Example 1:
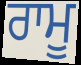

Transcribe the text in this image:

ਰਾਮੂ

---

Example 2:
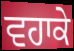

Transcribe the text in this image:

ਵਹਾਕੇ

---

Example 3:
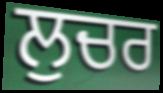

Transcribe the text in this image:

ਲੁਚਰ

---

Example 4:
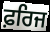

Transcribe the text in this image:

ਫ਼ਰਿਜ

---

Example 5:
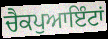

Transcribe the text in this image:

ਚੈਕਪੁਆਇੰਟਾਂ